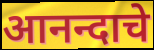
आनन्दाचे